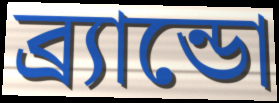
ব্র্যান্ডো